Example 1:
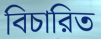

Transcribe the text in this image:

বিচারিত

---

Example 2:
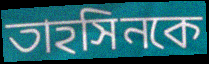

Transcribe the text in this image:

তাহসিনকে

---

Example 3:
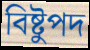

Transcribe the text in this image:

বিষ্টুপদ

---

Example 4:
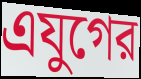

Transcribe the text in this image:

এযুগের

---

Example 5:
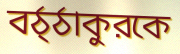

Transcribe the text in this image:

বঠ্ঠাকুরকে